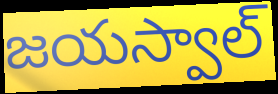
జయస్వాల్